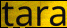
tara